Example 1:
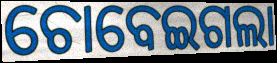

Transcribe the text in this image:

ଚୋବେଇଗଲା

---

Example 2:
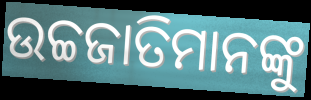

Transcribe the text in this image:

ଉଚ୍ଚଜାତିମାନଙ୍କୁ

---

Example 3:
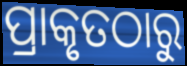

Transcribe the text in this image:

ପ୍ରାକୃତଠାରୁ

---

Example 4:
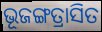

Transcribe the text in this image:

ଭୂଜଙ୍ଗତ୍ରାସିତ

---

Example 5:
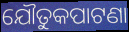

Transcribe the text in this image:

ଯୌତୁକପାଟଣା